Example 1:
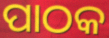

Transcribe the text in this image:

ପାଠକ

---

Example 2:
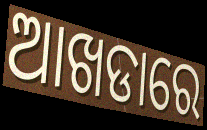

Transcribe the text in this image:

ଆଖଡାରେ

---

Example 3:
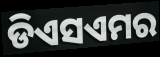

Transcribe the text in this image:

ଡିଏସଏମର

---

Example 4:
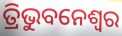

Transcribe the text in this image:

ତ୍ରିଭୁବନେଶ୍ବର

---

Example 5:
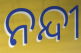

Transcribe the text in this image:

ନନ୍ଦୀ